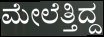
ಮೇಲೆತ್ತಿದ್ದ